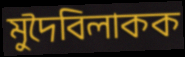
মুদৈবিলাকক